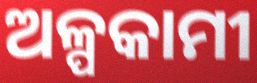
ଅଳ୍ପକାମୀ